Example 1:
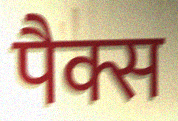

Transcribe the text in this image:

पैक्स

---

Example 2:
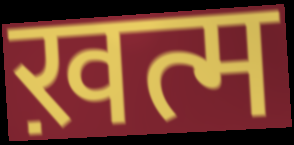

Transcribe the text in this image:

ख़त्म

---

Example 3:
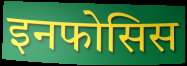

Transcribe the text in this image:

इनफोसिस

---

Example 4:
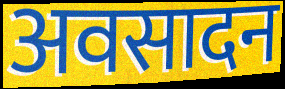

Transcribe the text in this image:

अवसादन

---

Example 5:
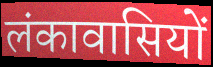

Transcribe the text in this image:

लंकावासियों